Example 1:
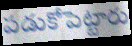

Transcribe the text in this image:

పడుకోపెట్టారు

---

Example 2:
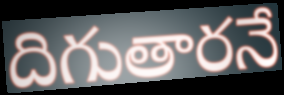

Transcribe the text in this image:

దిగుతారనే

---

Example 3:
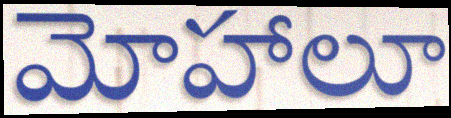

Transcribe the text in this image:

మోహాలూ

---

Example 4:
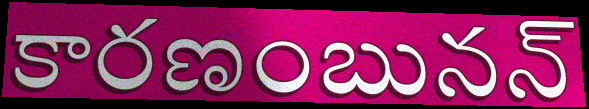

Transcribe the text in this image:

కారణంబునన్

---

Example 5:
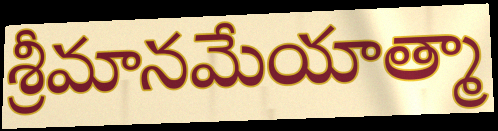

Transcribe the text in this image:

శ్రీమానమేయాత్మా